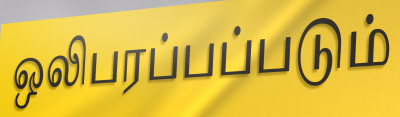
ஒலிபரப்பப்படும்